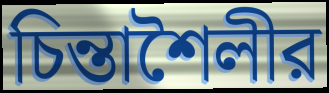
চিন্তাশৈলীর